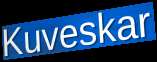
Kuveskar